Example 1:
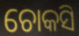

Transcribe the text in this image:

ଚୋକସି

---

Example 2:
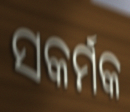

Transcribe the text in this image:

ସକର୍ମକ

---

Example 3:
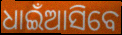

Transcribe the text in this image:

ଧାଇଁଆସିବେ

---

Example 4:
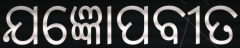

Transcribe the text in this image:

ଯଜ୍ଞୋପବୀତ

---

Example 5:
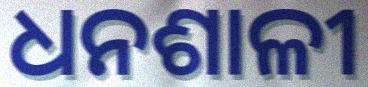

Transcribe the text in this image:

ଧନଶାଳୀ